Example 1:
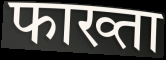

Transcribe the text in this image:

फाख्ता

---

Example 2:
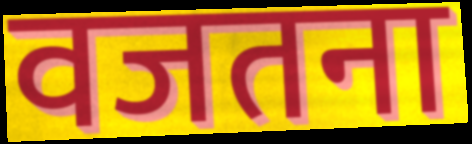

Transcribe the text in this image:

वजतना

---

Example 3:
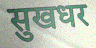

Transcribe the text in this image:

सुखधर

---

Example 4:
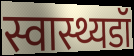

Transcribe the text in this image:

स्वास्थ्यडॉ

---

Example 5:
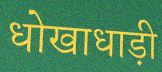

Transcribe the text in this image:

धोखाधाड़ी